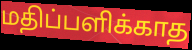
மதிப்பளிக்காத